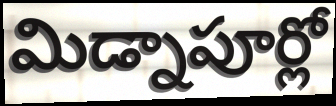
మిడ్నాపూర్లో